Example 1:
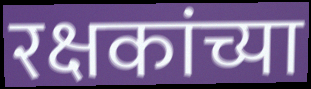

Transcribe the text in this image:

रक्षकांच्या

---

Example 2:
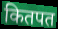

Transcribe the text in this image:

कितपत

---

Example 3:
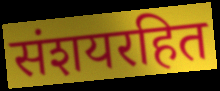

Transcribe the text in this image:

संशयरहित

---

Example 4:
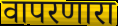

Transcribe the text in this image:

वापरणारा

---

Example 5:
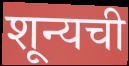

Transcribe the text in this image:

शून्यची